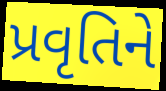
પ્રવૃતિને